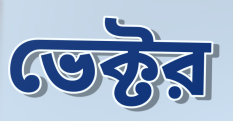
ভেক্টর